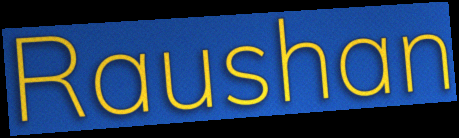
Raushan